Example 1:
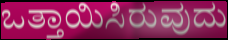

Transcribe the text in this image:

ಒತ್ತಾಯಿಸಿರುವುದು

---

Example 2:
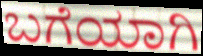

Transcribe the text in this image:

ಬಗೆಯಾಗಿ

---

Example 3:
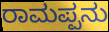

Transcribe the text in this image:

ರಾಮಪ್ಪನು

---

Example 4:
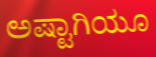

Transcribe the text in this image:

ಅಷ್ಟಾಗಿಯೂ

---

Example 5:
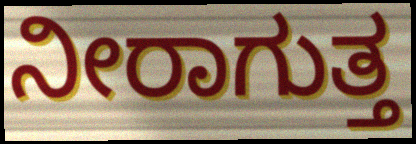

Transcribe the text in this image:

ನೀರಾಗುತ್ತ